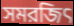
সমরজিৎ